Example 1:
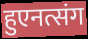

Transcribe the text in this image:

हुएनत्संग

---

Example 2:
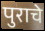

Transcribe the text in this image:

पुराचे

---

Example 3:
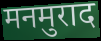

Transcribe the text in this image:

मनमुराद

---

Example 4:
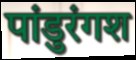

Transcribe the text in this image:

पांडुरंगश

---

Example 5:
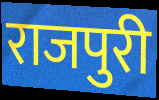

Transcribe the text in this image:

राजपुरी